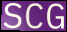
SCG